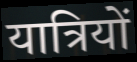
यात्रियों